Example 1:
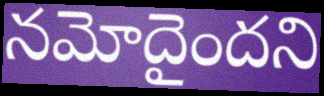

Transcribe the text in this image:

నమోదైందని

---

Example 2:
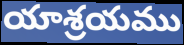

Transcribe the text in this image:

యాశ్రయము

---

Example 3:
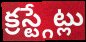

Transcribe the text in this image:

క్రస్ట్గేట్లు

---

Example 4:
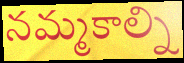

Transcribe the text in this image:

నమ్మకాల్ని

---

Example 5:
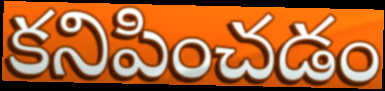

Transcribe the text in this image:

కనిపించడం